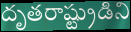
దృతరాష్ట్రుడిని